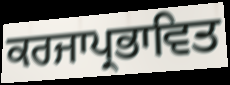
ਕਰਜਾਪ੍ਰਭਾਵਿਤ